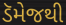
ડૅમેજથી